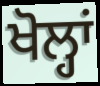
ਖੋਲ੍ਹਾਂ